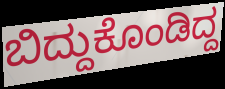
ಬಿದ್ದುಕೊಂಡಿದ್ದ